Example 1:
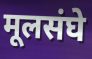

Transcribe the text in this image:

मूलसंघे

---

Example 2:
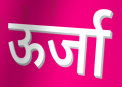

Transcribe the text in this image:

ऊर्जा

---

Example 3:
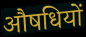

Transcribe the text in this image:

औषधियों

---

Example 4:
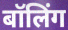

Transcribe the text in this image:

बॉलिंग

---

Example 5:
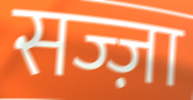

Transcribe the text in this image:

सज्ज़ा